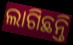
ଲାଗିଛନ୍ତି